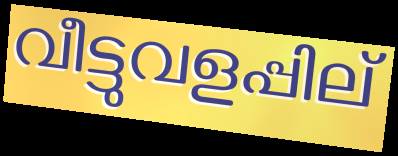
വീട്ടുവളപ്പില്